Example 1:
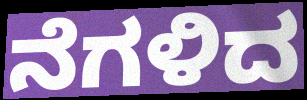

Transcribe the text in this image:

ನೆಗಳಿದ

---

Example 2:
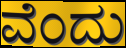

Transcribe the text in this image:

ವೆಂದು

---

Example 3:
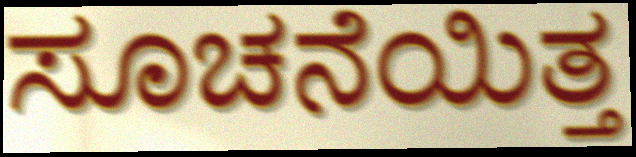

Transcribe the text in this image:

ಸೂಚನೆಯಿತ್ತ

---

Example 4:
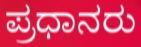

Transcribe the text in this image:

ಪ್ರಧಾನರು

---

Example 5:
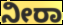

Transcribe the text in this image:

ನೀರಾ